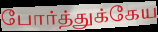
போர்த்துக்கேய